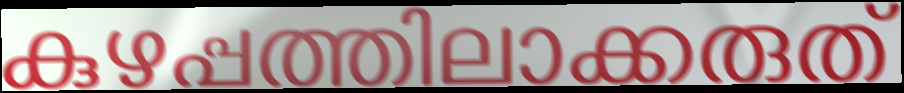
കുഴപ്പത്തിലാക്കരുത്